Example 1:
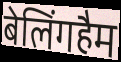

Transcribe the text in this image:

बेलिंगहैम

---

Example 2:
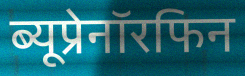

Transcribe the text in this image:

ब्यूप्रेनॉरफिन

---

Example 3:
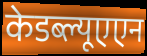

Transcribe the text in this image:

केडब्ल्यूएएन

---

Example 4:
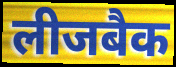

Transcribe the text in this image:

लीजबैक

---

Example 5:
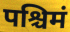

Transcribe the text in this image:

पश्चिमं